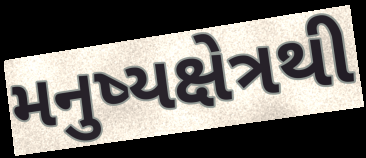
મનુષ્યક્ષેત્રથી